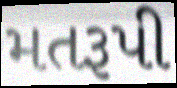
મતરૂપી